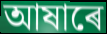
আষাৰে